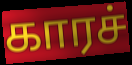
காரச்